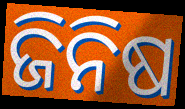
ଜିନିଷ